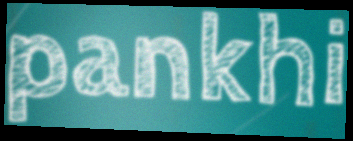
pankhi